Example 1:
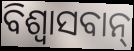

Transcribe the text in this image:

ବିଶ୍ଵାସବାନ୍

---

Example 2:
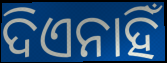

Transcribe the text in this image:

ଦିଏନାହିଁ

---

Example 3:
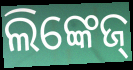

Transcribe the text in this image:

ଲିଙ୍କେଜ୍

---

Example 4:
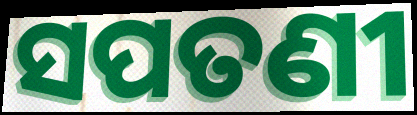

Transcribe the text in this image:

ସପତଣୀ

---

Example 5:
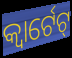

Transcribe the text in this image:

କ୍ୱାର୍ଟେଟ୍